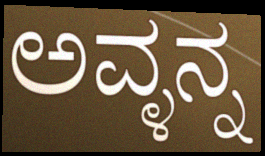
ಅವ್ಳನ್ನ